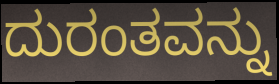
ದುರಂತವನ್ನು